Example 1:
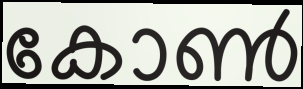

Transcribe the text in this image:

കോൺ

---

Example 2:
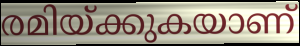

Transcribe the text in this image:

രമിയ്ക്കുകയാണ്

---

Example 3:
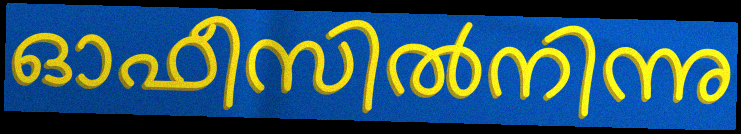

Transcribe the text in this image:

ഓഫീസിൽനിന്നു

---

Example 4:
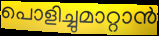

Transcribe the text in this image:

പൊളിച്ചുമാറ്റാൻ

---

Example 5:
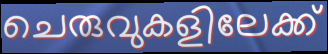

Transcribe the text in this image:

ചെരുവുകളിലേക്ക്